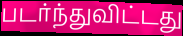
படர்ந்துவிட்டது